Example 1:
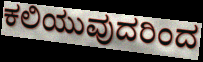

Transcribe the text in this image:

ಕಲಿಯುವುದರಿಂದ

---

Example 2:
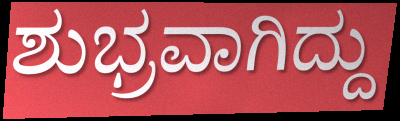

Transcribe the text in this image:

ಶುಭ್ರವಾಗಿದ್ದು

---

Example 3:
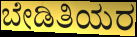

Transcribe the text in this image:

ಬೇಡಿತಿಯರ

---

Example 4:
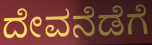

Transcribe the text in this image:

ದೇವನೆಡೆಗೆ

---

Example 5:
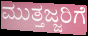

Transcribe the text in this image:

ಮುತ್ತಜ್ಜರಿಗೆ